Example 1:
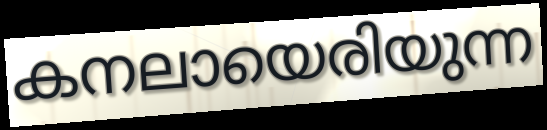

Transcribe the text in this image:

കനലായെരിയുന്ന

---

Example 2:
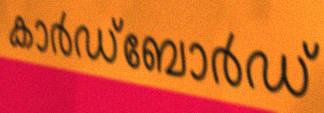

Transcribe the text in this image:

കാർഡ്ബോർഡ്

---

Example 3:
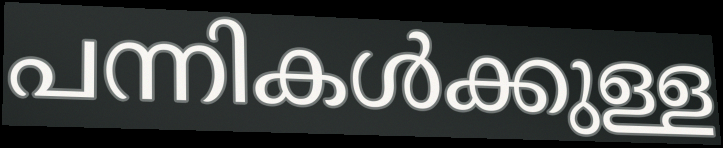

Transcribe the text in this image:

പന്നികൾക്കുള്ള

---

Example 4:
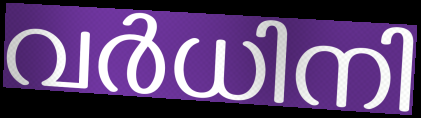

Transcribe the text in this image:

വർധിനി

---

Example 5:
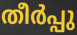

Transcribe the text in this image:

തീർപ്പു